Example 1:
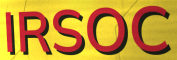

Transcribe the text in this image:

IRSOC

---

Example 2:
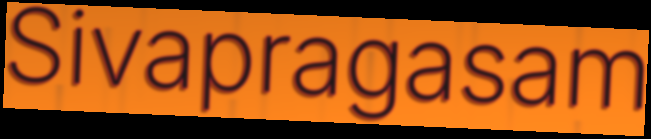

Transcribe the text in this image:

Sivapragasam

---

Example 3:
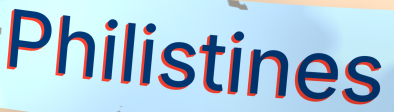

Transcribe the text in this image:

Philistines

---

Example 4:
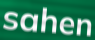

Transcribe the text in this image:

sahen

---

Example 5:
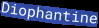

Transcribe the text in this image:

Diophantine